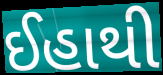
ઈહાથી